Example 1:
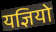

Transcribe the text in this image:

यज्ञियो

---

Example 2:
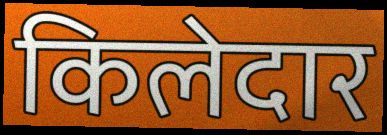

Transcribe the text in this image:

किलेदार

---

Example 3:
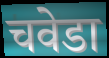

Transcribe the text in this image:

चवेडा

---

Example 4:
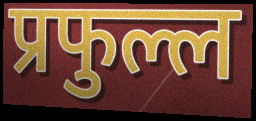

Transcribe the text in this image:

प्रफुल्ल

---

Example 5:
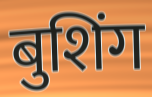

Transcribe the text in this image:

बुशिंग